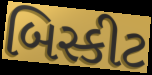
બિસ્કીટ